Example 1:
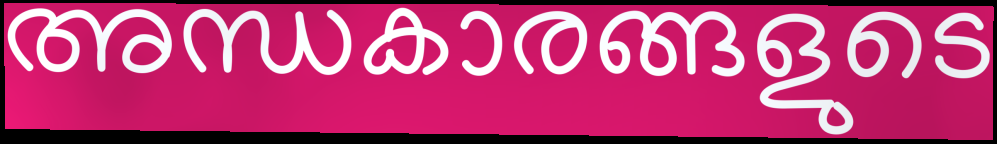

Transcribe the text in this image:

അന്ധകാരങ്ങളുടെ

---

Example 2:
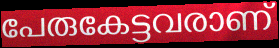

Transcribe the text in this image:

പേരുകേട്ടവരാണ്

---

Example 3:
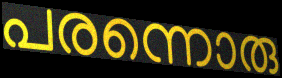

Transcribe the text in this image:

പരന്നൊരു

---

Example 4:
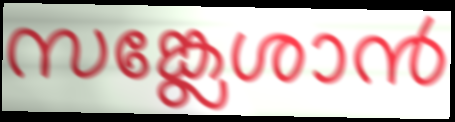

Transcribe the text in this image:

സങ്ക്ലേശാൻ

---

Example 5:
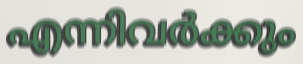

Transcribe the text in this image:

എന്നിവർക്കും